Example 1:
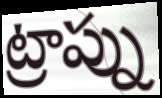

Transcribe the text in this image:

ట్రాప్ను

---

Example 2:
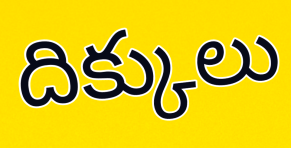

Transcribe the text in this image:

దిక్కులు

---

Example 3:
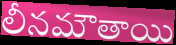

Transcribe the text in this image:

లీనమౌతాయి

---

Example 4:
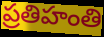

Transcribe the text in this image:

ప్రతిహంతి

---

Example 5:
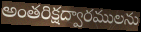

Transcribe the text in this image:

అంతరిక్షద్వారములను